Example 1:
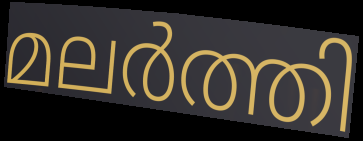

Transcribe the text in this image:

മലർത്തി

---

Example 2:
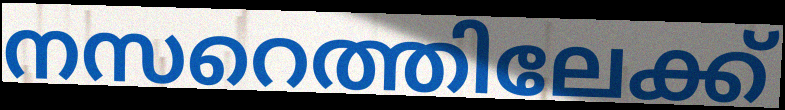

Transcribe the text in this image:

നസറെത്തിലേക്ക്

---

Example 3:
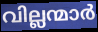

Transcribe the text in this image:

വില്ലന്മാർ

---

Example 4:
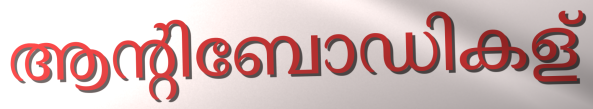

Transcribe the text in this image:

ആന്റിബോഡികള്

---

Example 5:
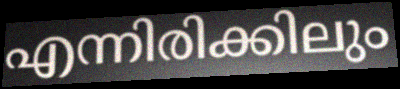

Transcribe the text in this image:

എന്നിരിക്കിലും